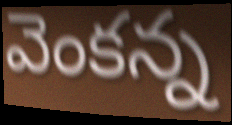
వెంకన్న